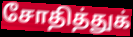
சோதித்துக்